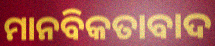
ମାନବିକତାବାଦ